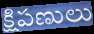
క్షిపణులు